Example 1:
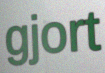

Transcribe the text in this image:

gjort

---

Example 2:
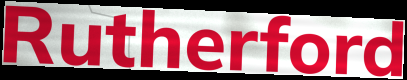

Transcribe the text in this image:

Rutherford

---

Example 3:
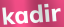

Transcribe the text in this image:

kadir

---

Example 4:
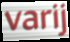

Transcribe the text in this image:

varij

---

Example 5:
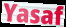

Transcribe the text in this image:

Yasaf